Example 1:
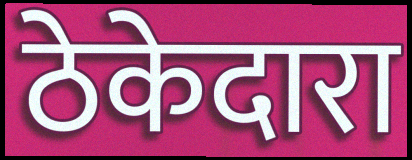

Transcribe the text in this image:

ठेकेदारा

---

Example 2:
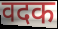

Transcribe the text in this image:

वदक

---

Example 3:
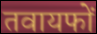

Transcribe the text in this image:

तवायफों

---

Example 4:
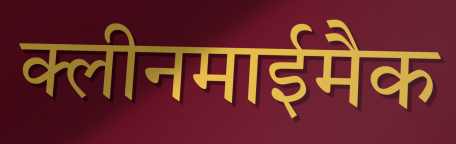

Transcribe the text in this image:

क्लीनमाईमैक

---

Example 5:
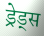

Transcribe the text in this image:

ड्रेड्स